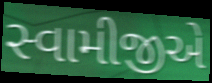
સ્વામીજીએ